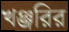
খঞ্জরির